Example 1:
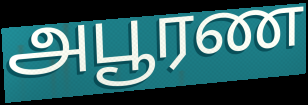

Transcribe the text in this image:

அபூரண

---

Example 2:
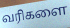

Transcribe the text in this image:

வரிகளை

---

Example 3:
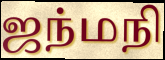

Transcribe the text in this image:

ஜந்மநி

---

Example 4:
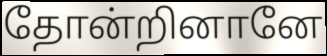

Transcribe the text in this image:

தோன்றினானே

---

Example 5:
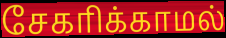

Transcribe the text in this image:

சேகரிக்காமல்